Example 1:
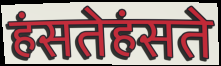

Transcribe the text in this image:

हंसतेहंसते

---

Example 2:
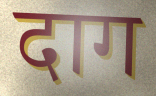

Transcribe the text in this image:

दाग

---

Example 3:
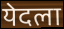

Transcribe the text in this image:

येदला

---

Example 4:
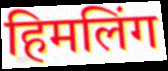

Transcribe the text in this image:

हिमलिंग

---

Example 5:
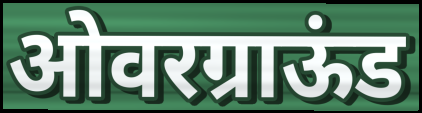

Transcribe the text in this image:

ओवरग्राऊंड